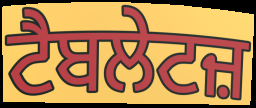
ਟੈਬਲੇਟਜ਼